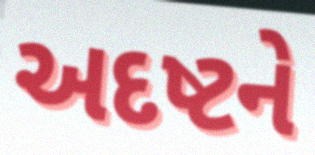
અદષ્ટને